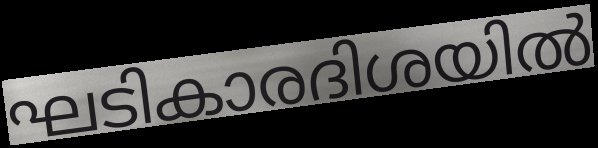
ഘടികാരദിശയിൽ